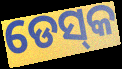
ଡେସ୍‌କ